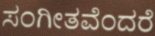
ಸಂಗೀತವೆಂದರೆ